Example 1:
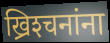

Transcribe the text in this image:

ख्रिश्‍चनांना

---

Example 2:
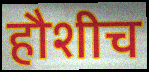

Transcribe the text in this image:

हौशीच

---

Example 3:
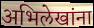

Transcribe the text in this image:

अभिलेखांना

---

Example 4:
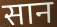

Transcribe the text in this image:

सान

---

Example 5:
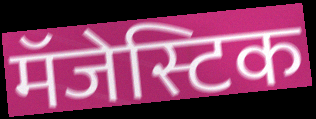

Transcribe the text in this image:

मॅजेस्टिक